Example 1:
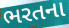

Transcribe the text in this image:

ભરતના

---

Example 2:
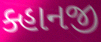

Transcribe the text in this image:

ક્હાનજી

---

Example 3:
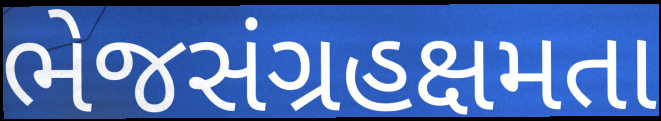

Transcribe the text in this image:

ભેજસંગ્રહક્ષમતા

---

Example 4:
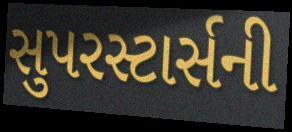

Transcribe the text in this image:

સુપરસ્ટાર્સની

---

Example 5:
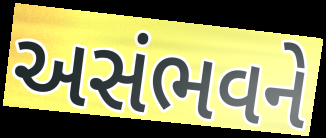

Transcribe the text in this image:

અસંભવને